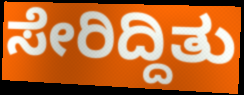
ಸೇರಿದ್ದಿತು